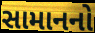
સામાનનો